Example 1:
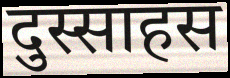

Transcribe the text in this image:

दुस्साहस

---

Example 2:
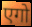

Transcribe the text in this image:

एगो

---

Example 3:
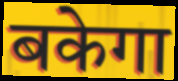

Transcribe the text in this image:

बकेगा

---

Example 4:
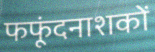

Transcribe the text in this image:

फफूंदनाशकों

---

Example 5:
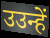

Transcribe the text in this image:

उउन्हें